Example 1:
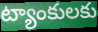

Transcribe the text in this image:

ట్యాంకులకు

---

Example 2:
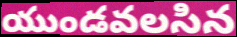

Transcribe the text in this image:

యుండవలసిన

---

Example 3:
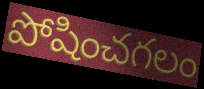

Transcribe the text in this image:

పోషించగలం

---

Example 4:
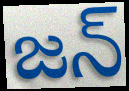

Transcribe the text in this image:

జన్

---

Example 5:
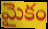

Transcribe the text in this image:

మైకం